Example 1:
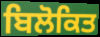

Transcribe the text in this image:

ਬਿਲੋਕਿਤ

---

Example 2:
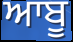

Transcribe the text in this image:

ਆਬੂ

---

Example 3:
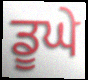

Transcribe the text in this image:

ਡੂਘੇ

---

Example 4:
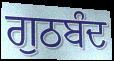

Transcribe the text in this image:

ਗੁਠਬੰਦ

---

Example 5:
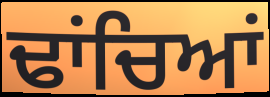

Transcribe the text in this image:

ਢਾਂਚਿਆਂ